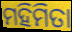
ମହିମିତା